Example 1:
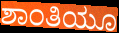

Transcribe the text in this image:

ಶಾಂತಿಯೂ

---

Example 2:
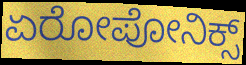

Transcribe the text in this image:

ಏರೋಪೋನಿಕ್ಸ್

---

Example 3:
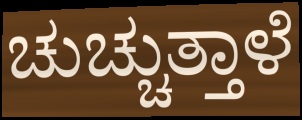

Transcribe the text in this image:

ಚುಚ್ಚುತ್ತಾಳೆ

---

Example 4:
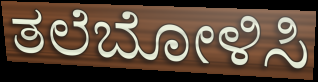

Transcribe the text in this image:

ತಲೆಬೋಳಿಸಿ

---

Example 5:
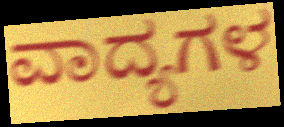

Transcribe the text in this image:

ವಾದ್ಯಗಳ